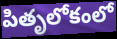
పితృలోకంలో